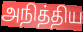
அநித்திய